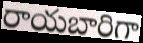
రాయబారిగా